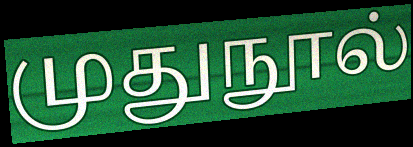
முதுநூல்